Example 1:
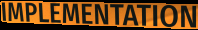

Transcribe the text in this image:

IMPLEMENTATION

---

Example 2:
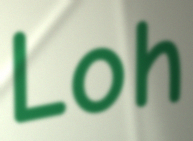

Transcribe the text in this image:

Loh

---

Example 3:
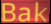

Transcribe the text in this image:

Bak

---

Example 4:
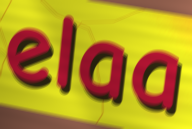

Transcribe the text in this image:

elaa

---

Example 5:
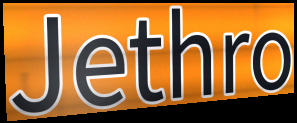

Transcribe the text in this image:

Jethro